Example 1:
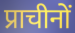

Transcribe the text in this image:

प्राचीनों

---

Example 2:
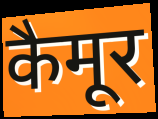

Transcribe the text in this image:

कैमूर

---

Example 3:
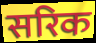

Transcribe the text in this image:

सरिक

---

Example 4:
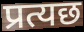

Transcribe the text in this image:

प्रत्यछ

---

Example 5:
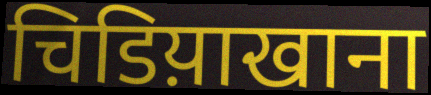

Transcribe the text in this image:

चिडिय़ाखाना